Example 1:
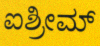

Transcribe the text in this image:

ಐಶ್ರೀಮ್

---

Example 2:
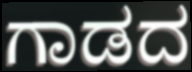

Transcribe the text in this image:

ಗಾಡದ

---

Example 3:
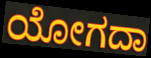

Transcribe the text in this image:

ಯೋಗದಾ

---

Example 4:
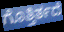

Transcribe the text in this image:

ಗೊತ್ತಿರ್ತದೆ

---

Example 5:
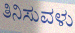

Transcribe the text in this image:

ತಿನಿಸುವಳು